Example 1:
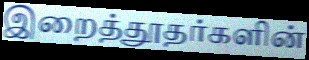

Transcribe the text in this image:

இறைத்தூதர்களின்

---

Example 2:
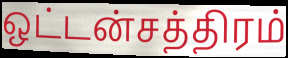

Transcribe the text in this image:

ஒட்டன்சத்திரம்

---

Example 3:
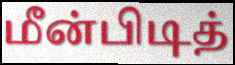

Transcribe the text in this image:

மீன்பிடித்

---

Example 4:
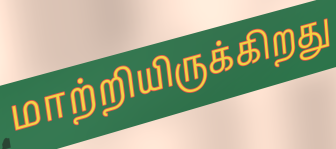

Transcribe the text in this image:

மாற்றியிருக்கிறது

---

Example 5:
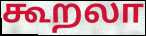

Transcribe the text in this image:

கூறலா